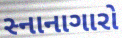
સ્નાનાગારો